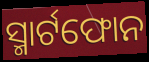
ସ୍ମାର୍ଟଫୋନ